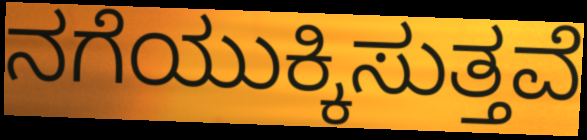
ನಗೆಯುಕ್ಕಿಸುತ್ತವೆ